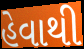
હેવાથી